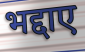
भद्दाए